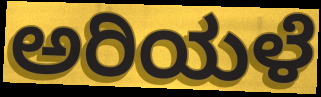
ಅರಿಯಳೆ